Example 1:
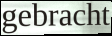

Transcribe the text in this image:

gebracht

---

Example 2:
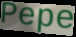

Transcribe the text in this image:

Pepe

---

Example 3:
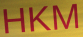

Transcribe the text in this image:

HKM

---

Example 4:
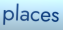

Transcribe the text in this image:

places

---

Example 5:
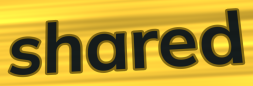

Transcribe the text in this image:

shared